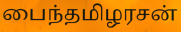
பைந்தமிழரசன்